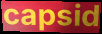
capsid